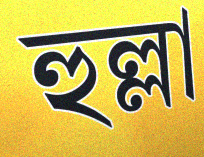
হুল্লা